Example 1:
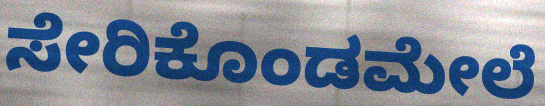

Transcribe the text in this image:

ಸೇರಿಕೊಂಡಮೇಲೆ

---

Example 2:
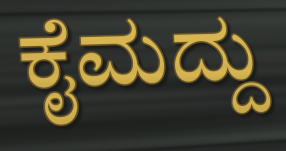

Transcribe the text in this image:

ಕೈಮದ್ದು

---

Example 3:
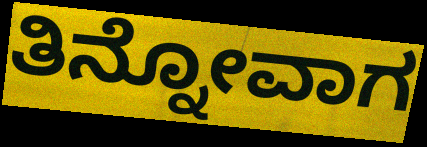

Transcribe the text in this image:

ತಿನ್ನೋವಾಗ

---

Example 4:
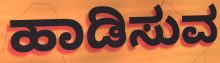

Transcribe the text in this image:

ಹಾಡಿಸುವ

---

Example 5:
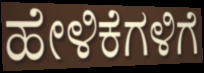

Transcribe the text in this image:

ಹೇಳಿಕೆಗಳಿಗೆ